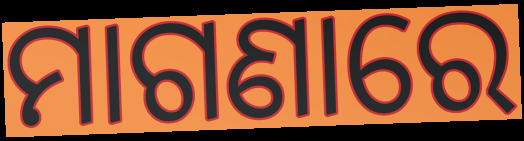
ମାଗଣାରେ